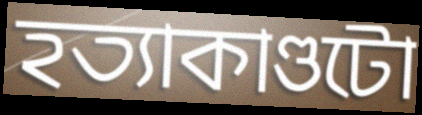
হত্যাকাণ্ডটো